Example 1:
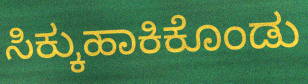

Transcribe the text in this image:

ಸಿಕ್ಕುಹಾಕಿಕೊಂಡು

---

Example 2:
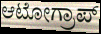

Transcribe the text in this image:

ಆಟೋಗ್ರಾಪ್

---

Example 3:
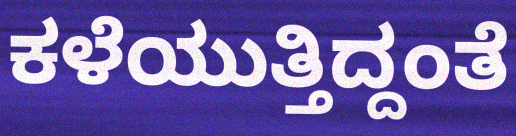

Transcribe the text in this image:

ಕಳೆಯುತ್ತಿದ್ದಂತೆ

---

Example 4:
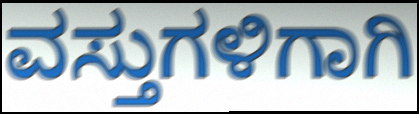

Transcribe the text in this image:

ವಸ್ತುಗಳಿಗಾಗಿ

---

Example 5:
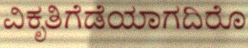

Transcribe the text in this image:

ವಿಕೃತಿಗೆಡೆಯಾಗದಿರೊ